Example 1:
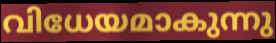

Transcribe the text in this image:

വിധേയമാകുന്നു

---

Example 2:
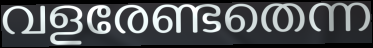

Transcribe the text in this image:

വളരേണ്ടതെന്ന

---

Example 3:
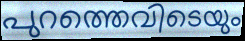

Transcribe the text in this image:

പുറത്തെവിടെയും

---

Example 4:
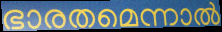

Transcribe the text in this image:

ഭാരതമെന്നാൽ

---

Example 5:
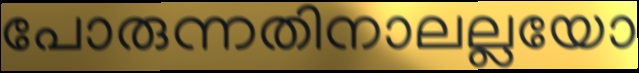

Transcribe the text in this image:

പോരുന്നതിനാലല്ലയോ